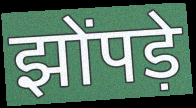
झोंपड़े